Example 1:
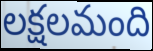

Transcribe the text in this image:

లక్షలమంది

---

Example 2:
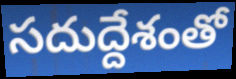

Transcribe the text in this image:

సదుద్దేశంతో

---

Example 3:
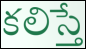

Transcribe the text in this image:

కలిస్తే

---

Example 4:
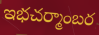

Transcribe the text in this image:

ఇభచర్మాంబర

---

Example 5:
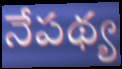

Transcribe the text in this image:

నేపథ్య